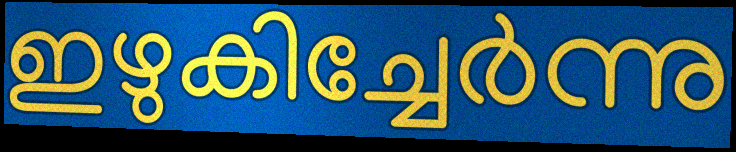
ഇഴുകിച്ചേർന്നു